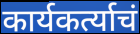
कार्यकर्त्याचं